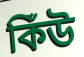
কিঁউ